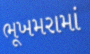
ભૂખમરામાં